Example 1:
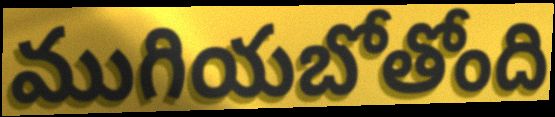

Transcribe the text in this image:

ముగియబోతోంది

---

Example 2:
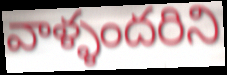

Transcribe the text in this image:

వాళ్ళందరిని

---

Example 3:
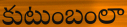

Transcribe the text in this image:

కుటుంబంలా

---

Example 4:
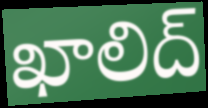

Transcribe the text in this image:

ఖాలిద్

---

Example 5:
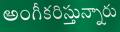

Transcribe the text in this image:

అంగీకరిస్తున్నారు